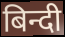
बिन्दी